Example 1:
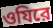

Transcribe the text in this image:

ওযিরে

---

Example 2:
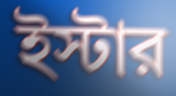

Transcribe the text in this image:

ইস্টার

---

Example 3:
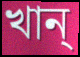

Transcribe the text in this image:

খান্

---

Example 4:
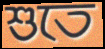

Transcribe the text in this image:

শুতে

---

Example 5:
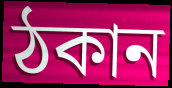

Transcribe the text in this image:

ঠকান